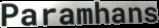
Paramhans